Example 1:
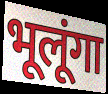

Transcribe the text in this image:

भूलूंगा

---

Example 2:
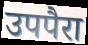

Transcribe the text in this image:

उपपैरा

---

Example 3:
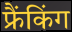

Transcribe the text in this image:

फ्रैंकिंग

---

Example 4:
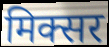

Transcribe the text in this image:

मिक्सर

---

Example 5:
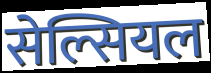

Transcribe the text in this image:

सेल्सियल